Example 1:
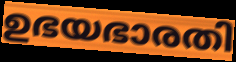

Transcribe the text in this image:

ഉഭയഭാരതി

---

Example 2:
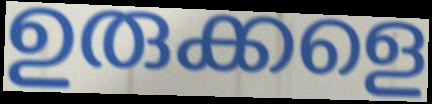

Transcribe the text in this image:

ഉരുക്കളെ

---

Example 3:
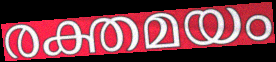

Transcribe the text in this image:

രക്തമയം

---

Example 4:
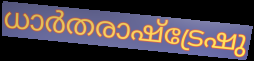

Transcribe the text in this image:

ധാർതരാഷ്ട്രേഷു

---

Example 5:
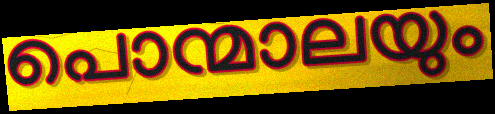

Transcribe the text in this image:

പൊന്മാലയും